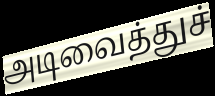
அடிவைத்துச்